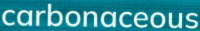
carbonaceous